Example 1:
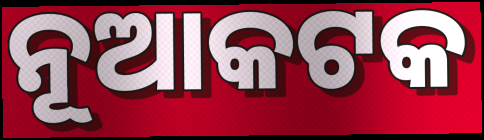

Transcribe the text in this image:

ନୂଆକଟକ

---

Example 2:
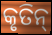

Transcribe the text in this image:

କୃତିନ୍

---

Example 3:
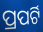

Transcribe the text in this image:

ପ୍ରପର୍ଟି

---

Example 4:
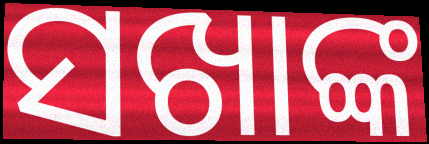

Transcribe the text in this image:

ସଖାଙ୍କ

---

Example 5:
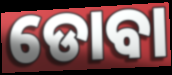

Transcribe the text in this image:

ଡୋବା